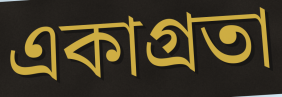
একাগ্ৰতা